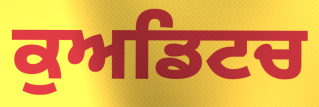
ਕੁਅਡਿਟਚ